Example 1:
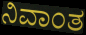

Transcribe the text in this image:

ನಿವಾಂತ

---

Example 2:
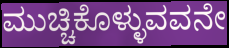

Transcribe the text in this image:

ಮುಚ್ಚಿಕೊಳ್ಳುವವನೇ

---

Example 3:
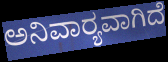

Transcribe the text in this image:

ಅನಿವಾರ‍್ಯವಾಗಿದೆ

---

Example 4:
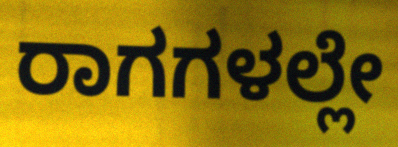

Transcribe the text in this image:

ರಾಗಗಳಲ್ಲೇ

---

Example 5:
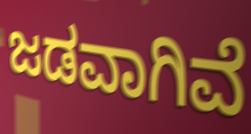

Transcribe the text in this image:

ಜಡವಾಗಿವೆ